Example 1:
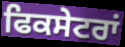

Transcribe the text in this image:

ਫਿਕਸੇਟਰਾਂ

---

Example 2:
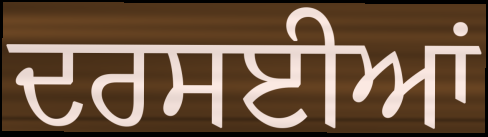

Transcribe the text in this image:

ਦਰਸਈਆਂ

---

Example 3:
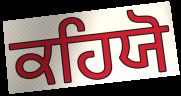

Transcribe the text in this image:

ਕਹਿਯੋ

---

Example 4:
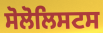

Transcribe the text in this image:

ਸੋਲੋਲਿਸਟਸ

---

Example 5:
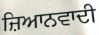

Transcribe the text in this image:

ਜ਼ਿਆਨਵਾਦੀ